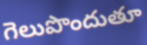
గెలుపొందుతూ